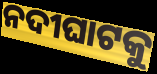
ନଦୀଘାଟକୁ